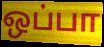
ஒப்பா